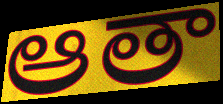
ఆతా